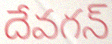
దేవగన్